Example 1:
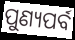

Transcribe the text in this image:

ପୁଣ୍ୟପର୍ବ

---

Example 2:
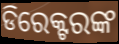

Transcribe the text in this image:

ଡିରେକ୍ଟରଙ୍କ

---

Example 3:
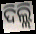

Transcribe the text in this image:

ଦିଲ୍ଲି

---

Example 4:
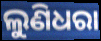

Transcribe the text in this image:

ଲୁଣିଧରା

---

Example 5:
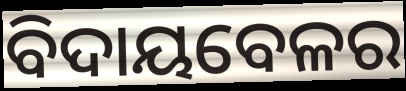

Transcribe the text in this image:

ବିଦାୟବେଳର